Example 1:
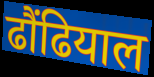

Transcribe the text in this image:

ढौंढियाल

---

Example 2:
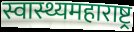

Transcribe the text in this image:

स्वास्थ्यमहाराष्ट्र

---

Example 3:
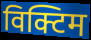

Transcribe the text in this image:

विक्टिम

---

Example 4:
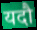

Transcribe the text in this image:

यदौ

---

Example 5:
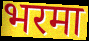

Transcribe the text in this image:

भरमा